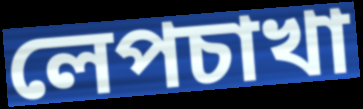
লেপচাখা